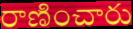
రాణించారు